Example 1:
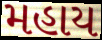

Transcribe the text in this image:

મહાય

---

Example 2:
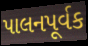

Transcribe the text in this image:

પાલનપૂર્વક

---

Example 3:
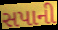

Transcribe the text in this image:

સપાની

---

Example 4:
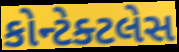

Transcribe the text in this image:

કોન્ટેક્ટલેસ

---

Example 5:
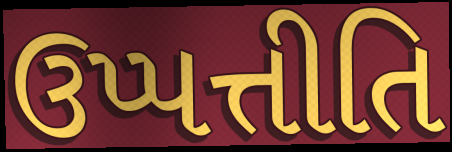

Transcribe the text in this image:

ઉપ્પત્તીતિ